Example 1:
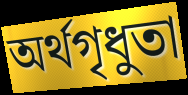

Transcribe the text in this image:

অর্থগৃধুতা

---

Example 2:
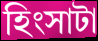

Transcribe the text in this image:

হিংসাটা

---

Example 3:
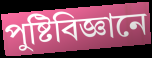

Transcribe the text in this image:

পুষ্টিবিজ্ঞানে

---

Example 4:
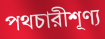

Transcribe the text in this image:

পথচারীশূণ্য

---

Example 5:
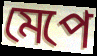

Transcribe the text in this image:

মেপে